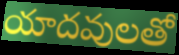
యాదవులతో